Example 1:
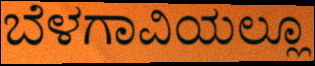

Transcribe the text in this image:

ಬೆಳಗಾವಿಯಲ್ಲೂ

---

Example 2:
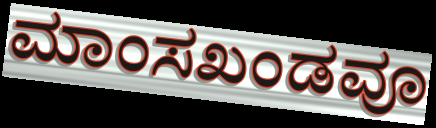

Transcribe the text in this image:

ಮಾಂಸಖಂಡವೂ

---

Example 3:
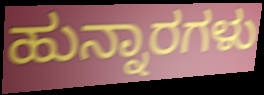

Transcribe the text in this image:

ಹುನ್ನಾರಗಳು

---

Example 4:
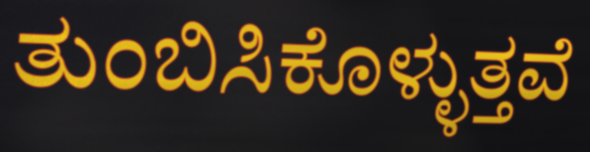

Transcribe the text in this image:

ತುಂಬಿಸಿಕೊಳ್ಳುತ್ತವೆ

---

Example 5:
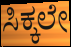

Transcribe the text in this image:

ಸಿಕ್ಕಲೇ